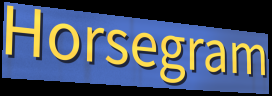
Horsegram